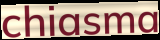
chiasma